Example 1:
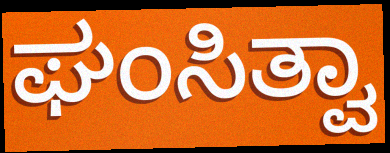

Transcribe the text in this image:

ಘಂಸಿತ್ವಾ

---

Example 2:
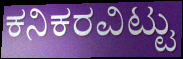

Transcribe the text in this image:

ಕನಿಕರವಿಟ್ಟು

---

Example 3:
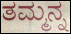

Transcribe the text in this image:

ತಮ್ಮನ್ನ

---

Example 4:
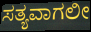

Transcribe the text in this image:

ಸತ್ಯವಾಗಲೀ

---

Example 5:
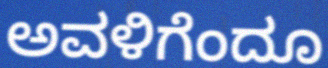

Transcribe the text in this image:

ಅವಳಿಗೆಂದೂ